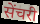
सेंचरी